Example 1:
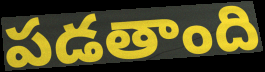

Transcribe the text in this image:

పడతాంది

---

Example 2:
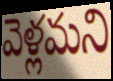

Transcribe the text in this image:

వెళ్లమని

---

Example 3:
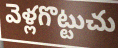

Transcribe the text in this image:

వెళ్లగొట్టుచు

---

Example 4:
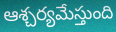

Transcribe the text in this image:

ఆశ్చర్యమేస్తుంది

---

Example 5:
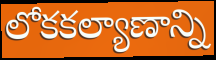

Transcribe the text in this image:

లోకకల్యాణాన్ని